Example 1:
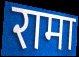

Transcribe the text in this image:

रामा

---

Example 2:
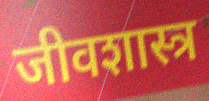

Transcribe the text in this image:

जीवशास्त्र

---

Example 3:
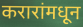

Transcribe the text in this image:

करारांमधून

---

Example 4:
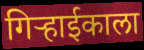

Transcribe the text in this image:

गिऱ्हाईकाला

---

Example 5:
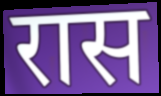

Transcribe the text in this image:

रास